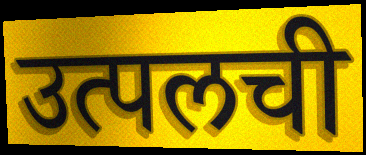
उत्पलची